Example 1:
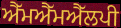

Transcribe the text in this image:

ਐੱਮਐੱਮਐੱਲਪੀ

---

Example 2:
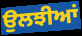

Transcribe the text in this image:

ਉਲਝੀਆਂ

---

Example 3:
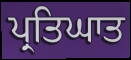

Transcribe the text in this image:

ਪ੍ਰਤਿਘਾਤ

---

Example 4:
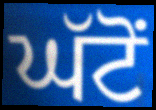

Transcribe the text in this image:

ਘੱਟੋਂ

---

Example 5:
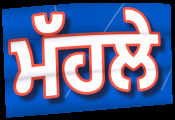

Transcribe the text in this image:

ਮੱਹਲੇ